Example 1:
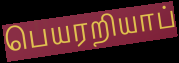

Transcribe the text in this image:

பெயரறியாப்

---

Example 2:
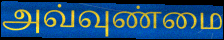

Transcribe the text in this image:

அவ்வுண்மை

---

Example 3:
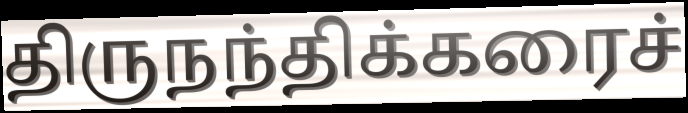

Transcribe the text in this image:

திருநந்திக்கரைச்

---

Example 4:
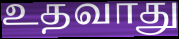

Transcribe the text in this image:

உதவாது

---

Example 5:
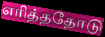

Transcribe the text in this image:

எரித்ததோடு